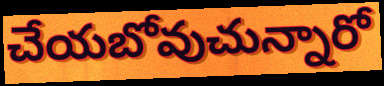
చేయబోవుచున్నారో